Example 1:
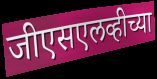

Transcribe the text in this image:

जीएसएलव्हीच्या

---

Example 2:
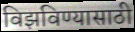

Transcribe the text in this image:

विझविण्यासाठी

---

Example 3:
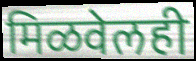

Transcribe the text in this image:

मिळवेलही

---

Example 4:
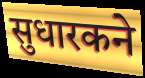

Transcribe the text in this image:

सुधारकने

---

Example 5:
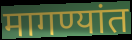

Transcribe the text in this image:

मागण्यांत